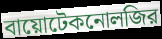
বায়োটেকনোলজির